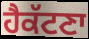
ਹੈਕੱਟਣਾ